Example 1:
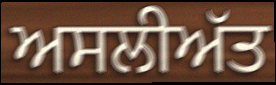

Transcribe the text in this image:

ਅਸਲੀਅੱਤ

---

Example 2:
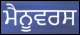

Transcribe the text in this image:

ਮੈਨੂਵਰਸ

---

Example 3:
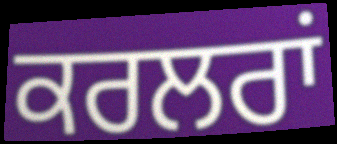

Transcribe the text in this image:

ਕਰਲਰਾਂ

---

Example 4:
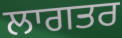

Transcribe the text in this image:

ਲਾਗਤਰ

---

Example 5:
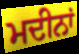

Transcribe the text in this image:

ਮਦੀਨਾਂ